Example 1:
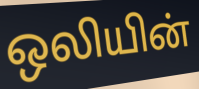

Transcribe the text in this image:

ஒலியின்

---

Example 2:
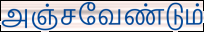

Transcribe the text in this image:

அஞ்சவேண்டும்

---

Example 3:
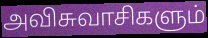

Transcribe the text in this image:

அவிசுவாசிகளும்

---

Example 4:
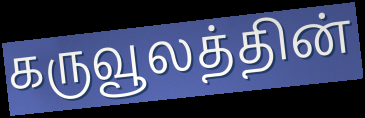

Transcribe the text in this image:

கருவூலத்தின்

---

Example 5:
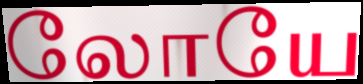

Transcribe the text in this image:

லோயே